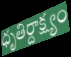
ధృతిర్దాక్ష్యం